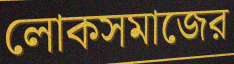
লোকসমাজের